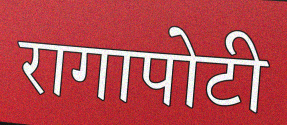
रागापोटी